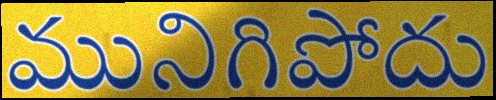
మునిగిపోదు